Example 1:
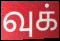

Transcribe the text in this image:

வுக்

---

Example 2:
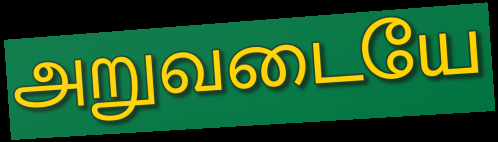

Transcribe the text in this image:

அறுவடையே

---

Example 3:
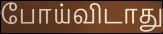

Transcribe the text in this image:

போய்விடாது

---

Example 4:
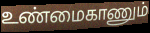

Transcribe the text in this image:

உண்மைகாணும்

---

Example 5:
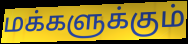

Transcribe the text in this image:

மக்களுக்கும்